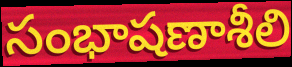
సంభాషణాశీలి